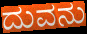
ದುವನು